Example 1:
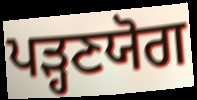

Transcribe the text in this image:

ਪੜ੍ਹਣਯੋਗ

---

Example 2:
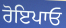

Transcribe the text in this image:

ਰੋਇਪਾਓ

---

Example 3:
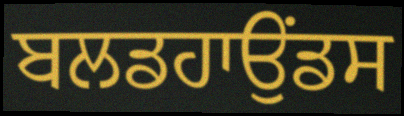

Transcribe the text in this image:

ਬਲਡਹਾਉਂਡਸ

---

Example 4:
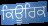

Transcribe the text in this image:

ਕਿਊਰਿਕ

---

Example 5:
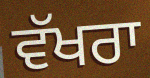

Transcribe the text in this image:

ਵੱਖਰਾ